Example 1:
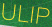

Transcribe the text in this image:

ULIP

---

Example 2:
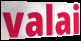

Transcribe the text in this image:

valai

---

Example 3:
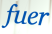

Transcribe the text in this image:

fuer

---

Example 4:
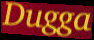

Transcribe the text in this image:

Dugga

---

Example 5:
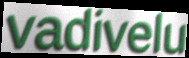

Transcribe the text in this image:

vadivelu